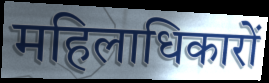
महिलाधिकारों